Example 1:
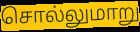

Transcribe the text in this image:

சொல்லுமாறு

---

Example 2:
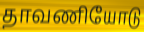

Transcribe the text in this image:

தாவணியோடு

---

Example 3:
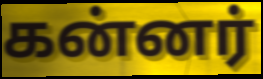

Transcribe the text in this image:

கன்னர்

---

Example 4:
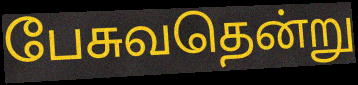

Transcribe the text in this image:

பேசுவதென்று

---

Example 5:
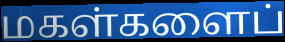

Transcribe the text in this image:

மகள்களைப்